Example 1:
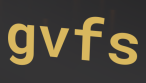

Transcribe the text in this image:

gvfs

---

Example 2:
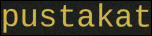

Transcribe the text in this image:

pustakat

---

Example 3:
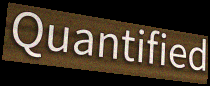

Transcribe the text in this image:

Quantified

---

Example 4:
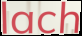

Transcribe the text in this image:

lach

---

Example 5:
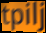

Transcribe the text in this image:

tpilj